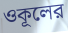
ওকূলের